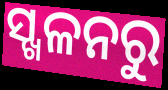
ସ୍ଖଳନରୁ